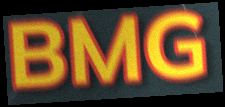
BMG